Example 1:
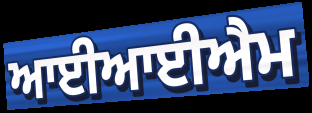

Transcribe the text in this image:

ਆਈਆਈਐਮ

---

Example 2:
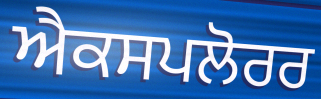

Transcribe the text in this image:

ਐਕਸਪਲੋਰਰ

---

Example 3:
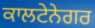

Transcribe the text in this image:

ਕਾਲਟੇਨੇਗਰ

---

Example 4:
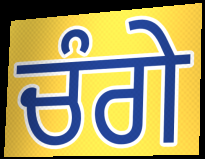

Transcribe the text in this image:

ਚੰਗੇ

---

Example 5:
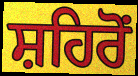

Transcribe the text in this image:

ਸ਼ਹਿਰੋਂ